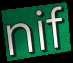
nif